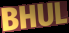
BHUL